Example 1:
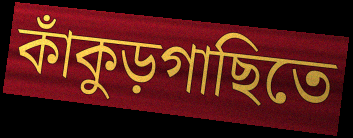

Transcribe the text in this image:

কাঁকুড়গাছিতে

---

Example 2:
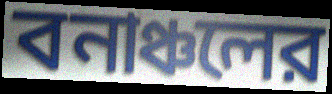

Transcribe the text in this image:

বনাঞ্চলের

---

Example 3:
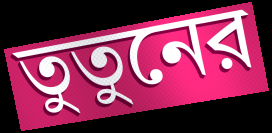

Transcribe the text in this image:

তুতুনের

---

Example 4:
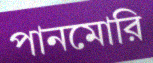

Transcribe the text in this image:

পানমোরি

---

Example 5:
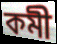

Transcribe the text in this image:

কমী